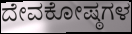
ದೇವಕೋಷ್ಠಗಳ